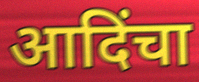
आदिंचा